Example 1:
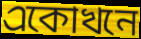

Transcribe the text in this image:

একোখনে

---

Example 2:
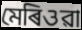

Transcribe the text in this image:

মেৰিওৱা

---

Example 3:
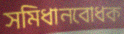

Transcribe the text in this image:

সমিধানবোধক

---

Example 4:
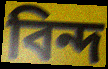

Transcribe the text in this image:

বিন্দ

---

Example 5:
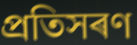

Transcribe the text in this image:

প্ৰতিসৰণ